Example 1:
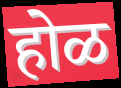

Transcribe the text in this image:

होळ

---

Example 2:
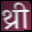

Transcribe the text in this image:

थ्री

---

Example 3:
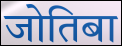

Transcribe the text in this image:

जोतिबा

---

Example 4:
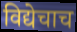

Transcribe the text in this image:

विद्येचाच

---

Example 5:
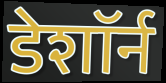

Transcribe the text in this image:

डेशॉर्न